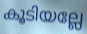
കൂടിയല്ലേ